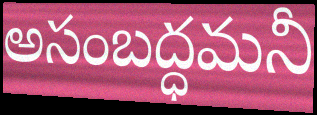
అసంబద్ధమనీ